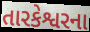
તારકેશ્વરના